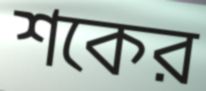
শকের